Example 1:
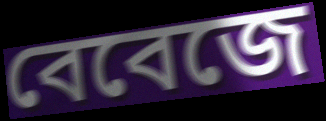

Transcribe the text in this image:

বেবেজে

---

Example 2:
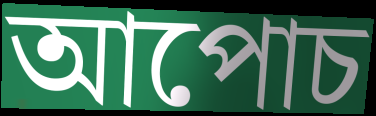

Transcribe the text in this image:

আপোচ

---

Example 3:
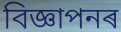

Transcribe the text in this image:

বিজ্ঞাপনৰ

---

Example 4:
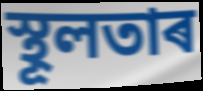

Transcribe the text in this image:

স্থূলতাৰ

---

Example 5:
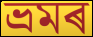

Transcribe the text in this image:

ভ্ৰমৰ